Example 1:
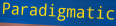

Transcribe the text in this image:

Paradigmatic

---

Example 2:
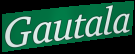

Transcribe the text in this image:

Gautala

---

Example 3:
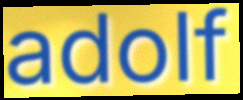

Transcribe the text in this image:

adolf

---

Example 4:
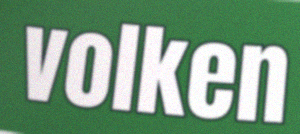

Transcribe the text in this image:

volken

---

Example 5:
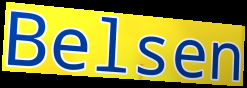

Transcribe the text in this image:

Belsen